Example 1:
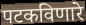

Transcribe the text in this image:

पटकविणारे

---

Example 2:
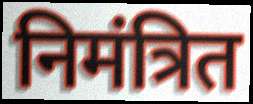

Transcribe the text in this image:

निमंत्रित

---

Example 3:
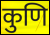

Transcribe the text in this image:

कुणि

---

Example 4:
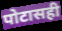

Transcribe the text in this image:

पोटासही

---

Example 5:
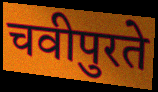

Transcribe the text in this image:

चवीपुरते